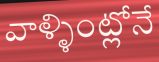
వాళ్ళింట్లోనే